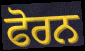
ਫੋਰਨ